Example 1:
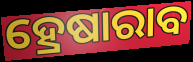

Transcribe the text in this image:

ହ୍ରେଷାରାବ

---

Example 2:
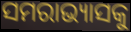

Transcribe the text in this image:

ସମରାଭ୍ୟାସକୁ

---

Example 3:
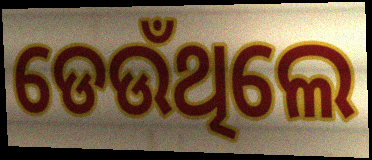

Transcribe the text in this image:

ଡେଉଁଥିଲେ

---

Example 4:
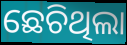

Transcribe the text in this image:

ଛେଚିଥିଲା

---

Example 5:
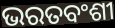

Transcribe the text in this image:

ଭରତବଂଶୀ